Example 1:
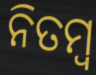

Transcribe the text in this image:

ନିତମ୍ବ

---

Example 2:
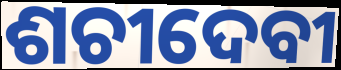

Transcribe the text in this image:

ଶଚୀଦେବୀ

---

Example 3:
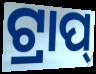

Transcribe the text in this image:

ଟ୍ରାପ୍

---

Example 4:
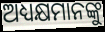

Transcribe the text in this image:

ଅଧ୍ୟକ୍ଷମାନଙ୍କୁ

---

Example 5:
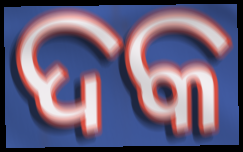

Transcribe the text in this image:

ଦକ